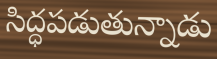
సిద్ధపడుతున్నాడు